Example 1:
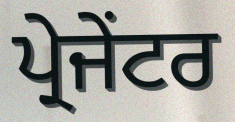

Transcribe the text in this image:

ਪ੍ਰੇਜੇਂਟਰ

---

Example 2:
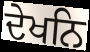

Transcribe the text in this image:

ਦੇਖਨਿ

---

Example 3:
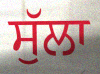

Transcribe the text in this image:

ਸੁੱਲਾ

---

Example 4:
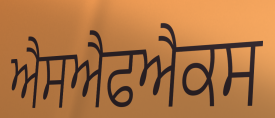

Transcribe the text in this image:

ਐਸਐਫਐਕਸ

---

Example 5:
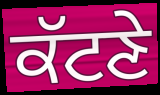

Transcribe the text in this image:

ਕੱਟਣੇ